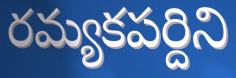
రమ్యకపర్దిని